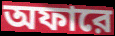
অফারে